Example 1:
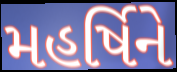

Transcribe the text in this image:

મહર્ષિને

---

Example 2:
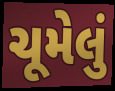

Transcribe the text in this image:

ચૂમેલું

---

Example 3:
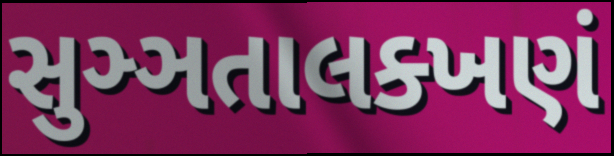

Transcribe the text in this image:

સુઞ્ઞતાલક્ખણં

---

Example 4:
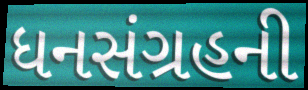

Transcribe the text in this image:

ધનસંગ્રહની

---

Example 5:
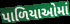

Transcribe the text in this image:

પાળિયાઓમાં